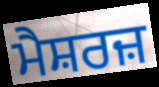
ਮੈਸ਼ਰਜ਼